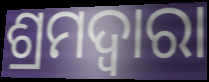
ଶ୍ରମଦ୍ୱାରା